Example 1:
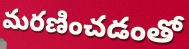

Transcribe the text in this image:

మరణించడంతో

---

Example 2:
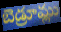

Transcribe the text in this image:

బెడ్రూమ్లు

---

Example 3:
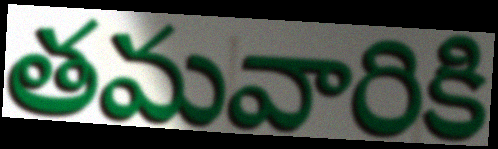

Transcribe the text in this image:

తమవారికి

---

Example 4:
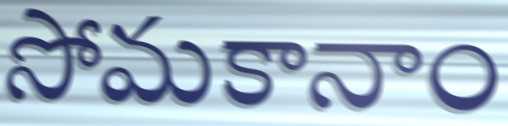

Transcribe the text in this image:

సోమకానాం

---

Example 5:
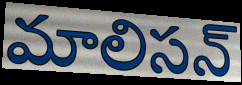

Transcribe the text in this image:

మాలిసన్